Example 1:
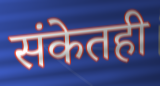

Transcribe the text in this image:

संकेतही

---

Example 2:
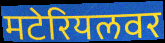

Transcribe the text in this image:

मटेरियलवर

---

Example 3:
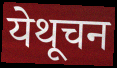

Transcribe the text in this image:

येथूचन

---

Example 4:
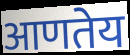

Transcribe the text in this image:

आणतेय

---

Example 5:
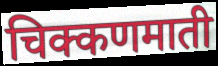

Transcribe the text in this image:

चिक्कणमाती